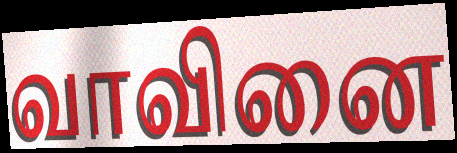
வாவினை